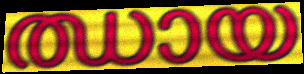
ഝായ